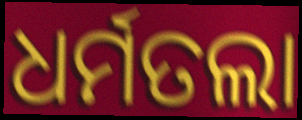
ଧର୍ମତଲା